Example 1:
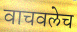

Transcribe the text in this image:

वाचवलेच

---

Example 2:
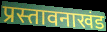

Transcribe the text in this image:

प्रस्तावनाखंड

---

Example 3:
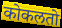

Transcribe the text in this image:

कोकलतो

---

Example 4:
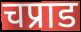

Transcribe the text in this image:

चप्राड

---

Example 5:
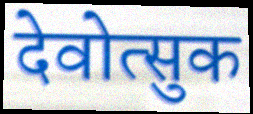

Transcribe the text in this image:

देवोत्सुक